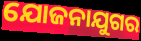
ଯୋଜନାଯୁଗର